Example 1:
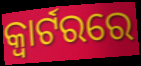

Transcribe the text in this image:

କ୍ବାର୍ଟରରେ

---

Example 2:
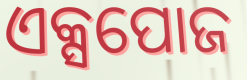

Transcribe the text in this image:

ଏକ୍ସପୋଜ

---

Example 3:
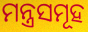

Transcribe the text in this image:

ମନ୍ତ୍ରସମୂହ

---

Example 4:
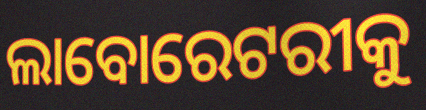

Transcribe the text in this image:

ଲାବୋରେଟରୀକୁ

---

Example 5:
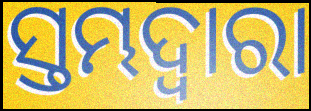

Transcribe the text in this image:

ସ୍ତମ୍ଭଦ୍ୱାରା